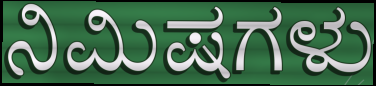
ನಿಮಿಷಗಳು